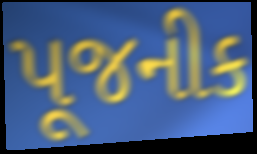
પૂજનીક